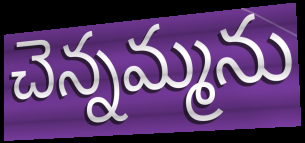
చెన్నమ్మను